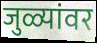
जुळ्यांवर